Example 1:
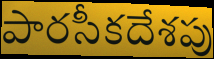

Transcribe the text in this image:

పారసీకదేశపు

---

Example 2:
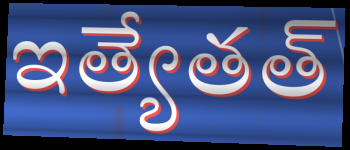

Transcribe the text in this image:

ఇత్యేతత్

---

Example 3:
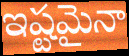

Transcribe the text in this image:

ఇష్టమైనా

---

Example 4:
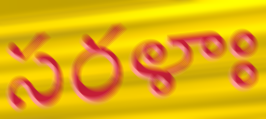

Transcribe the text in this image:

సరళాః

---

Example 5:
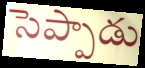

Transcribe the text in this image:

సెప్పాడు